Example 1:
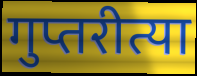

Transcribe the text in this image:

गुप्तरीत्या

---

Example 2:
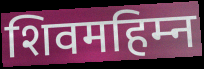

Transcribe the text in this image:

शिवमहिम्न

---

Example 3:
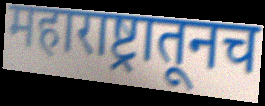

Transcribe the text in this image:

महाराष्ट्रातूनच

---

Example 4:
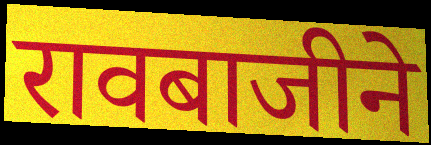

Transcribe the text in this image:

रावबाजीने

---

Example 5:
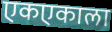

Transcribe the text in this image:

एकएकाला